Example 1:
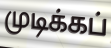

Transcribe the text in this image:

முடிக்கப்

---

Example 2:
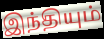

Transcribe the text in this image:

இந்தியும்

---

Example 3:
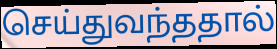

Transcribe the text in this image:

செய்துவந்ததால்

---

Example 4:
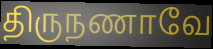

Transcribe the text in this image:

திருநணாவே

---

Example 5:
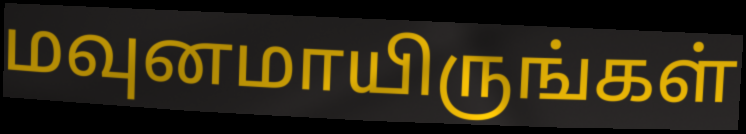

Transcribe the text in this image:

மவுனமாயிருங்கள்